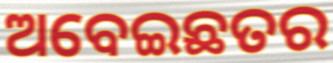
ଅବେଇଛତର